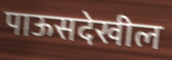
पाऊसदेखील